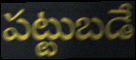
పట్టుబడే